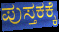
ಪುಸ್ತಕಕ್ಕೆ